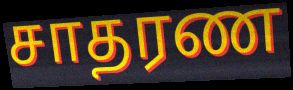
சாதரண